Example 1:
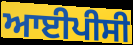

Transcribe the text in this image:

ਆਈਪੀਸੀ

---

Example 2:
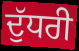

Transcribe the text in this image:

ਦੁੱਧਰੀ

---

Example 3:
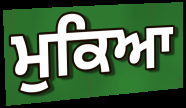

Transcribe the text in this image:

ਮੁਕਿਆ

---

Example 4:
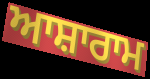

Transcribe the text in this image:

ਆਸ਼ਾਰਾਮ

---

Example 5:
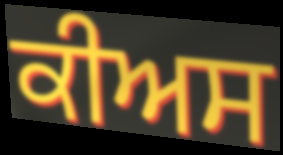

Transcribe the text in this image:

ਕੀਅਸ